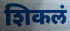
शिकलं